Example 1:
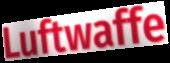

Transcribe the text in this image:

Luftwaffe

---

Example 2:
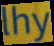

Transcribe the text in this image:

lhy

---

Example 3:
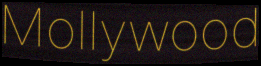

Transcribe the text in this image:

Mollywood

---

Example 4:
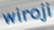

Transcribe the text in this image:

wiroji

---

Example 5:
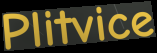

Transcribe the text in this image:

Plitvice